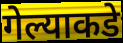
गेल्याकडे